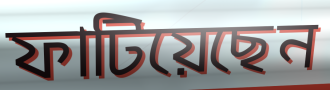
ফাটিয়েছেন